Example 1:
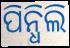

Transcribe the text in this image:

ପିନ୍ଧିଲି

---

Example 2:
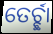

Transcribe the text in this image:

ତେର୍ଚ୍ଛା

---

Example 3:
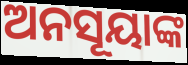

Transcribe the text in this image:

ଅନସୂୟାଙ୍କ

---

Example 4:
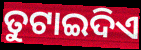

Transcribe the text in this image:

ତୁଟାଇଦିଏ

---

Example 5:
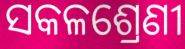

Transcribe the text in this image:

ସକଳଶ୍ରେଣୀ